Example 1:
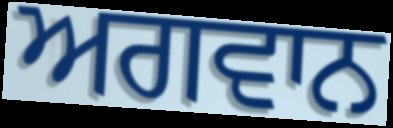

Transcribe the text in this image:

ਅਗਵਾਨ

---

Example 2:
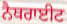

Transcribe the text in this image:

ਨੈਥਰਾਈਟ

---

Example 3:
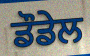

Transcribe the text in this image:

ਡੌਡੇਲ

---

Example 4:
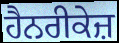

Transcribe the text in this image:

ਹੈਨਰੀਕੇਜ਼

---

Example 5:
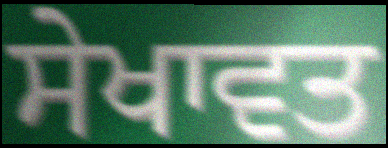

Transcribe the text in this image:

ਸੇਖਾਵਤ